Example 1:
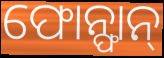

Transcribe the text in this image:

ଫୋନ୍ଫାନ୍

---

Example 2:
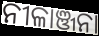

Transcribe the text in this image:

ନୀଳାଞ୍ଜନା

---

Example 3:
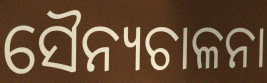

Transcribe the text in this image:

ସୈନ୍ୟଚାଳନା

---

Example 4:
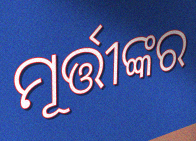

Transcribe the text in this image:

ମୂର୍ତ୍ତୀଙ୍କର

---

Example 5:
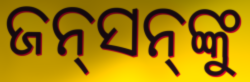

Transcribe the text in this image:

ଜନ୍‍ସନ୍‍ଙ୍କୁ